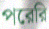
পরেরি